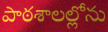
పాఠశాలల్లోను